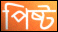
পিষ্ট